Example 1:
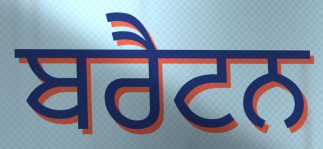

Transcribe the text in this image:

ਬਰੈਟਨ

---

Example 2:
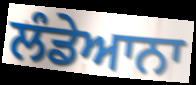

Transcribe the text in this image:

ਲੰਡੇਆਨਾ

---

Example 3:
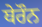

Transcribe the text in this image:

ਥੇਰੌਨ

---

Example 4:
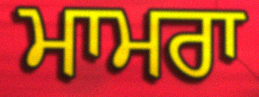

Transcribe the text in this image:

ਮਾਮਰਾ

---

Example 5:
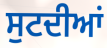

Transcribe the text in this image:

ਸੁਟਦੀਆਂ